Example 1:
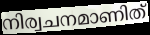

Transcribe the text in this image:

നിര്വചനമാണിത്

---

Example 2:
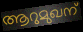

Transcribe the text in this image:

ആറുമുഖന്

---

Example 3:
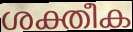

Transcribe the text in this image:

ശക്തീക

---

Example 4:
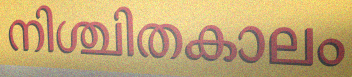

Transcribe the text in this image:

നിശ്ചിതകാലം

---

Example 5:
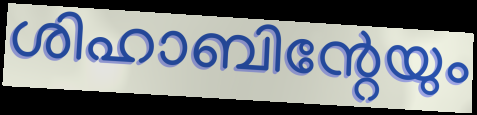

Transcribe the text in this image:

ശിഹാബിന്റേയും